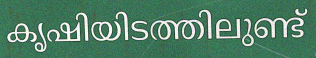
കൃഷിയിടത്തിലുണ്ട്